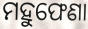
ମହୁଫେଣା